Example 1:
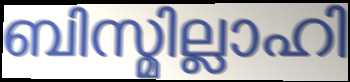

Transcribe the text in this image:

ബിസ്മില്ലാഹി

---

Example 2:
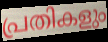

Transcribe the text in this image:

പ്രതികളും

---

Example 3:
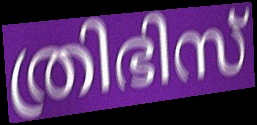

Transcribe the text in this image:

ത്രിഭിസ്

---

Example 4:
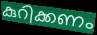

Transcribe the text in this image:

കുറിക്കണം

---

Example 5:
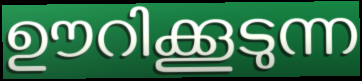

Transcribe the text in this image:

ഊറിക്കൂടുന്ന